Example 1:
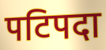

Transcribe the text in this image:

पटिपदा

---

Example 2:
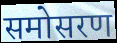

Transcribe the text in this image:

समोसरण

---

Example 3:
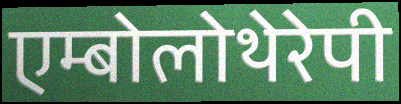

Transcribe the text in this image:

एम्बोलोथेरेपी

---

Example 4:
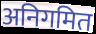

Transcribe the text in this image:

अनिगमित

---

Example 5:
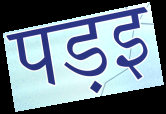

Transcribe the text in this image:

पड़इ